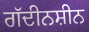
ਗੱਦੀਨਸ਼ੀਨ